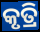
କୃତ୍ରି